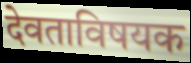
देवताविषयक